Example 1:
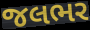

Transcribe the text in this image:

જલભર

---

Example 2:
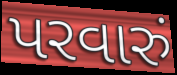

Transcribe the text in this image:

પરવારું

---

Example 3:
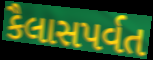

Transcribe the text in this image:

કૈલાસપર્વત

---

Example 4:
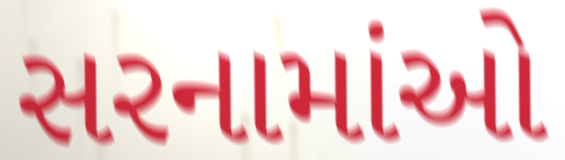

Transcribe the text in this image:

સરનામાંઓ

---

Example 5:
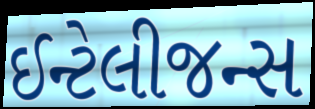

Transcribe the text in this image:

ઈન્ટેલીજન્સ